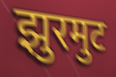
झुरमुट